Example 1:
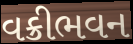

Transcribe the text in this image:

વક્રીભવન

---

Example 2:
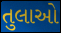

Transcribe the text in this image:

તુલાઓ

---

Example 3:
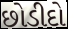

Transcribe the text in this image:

છોડીદો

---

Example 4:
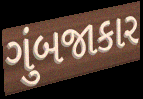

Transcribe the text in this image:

ગુંબજાકાર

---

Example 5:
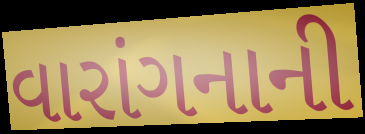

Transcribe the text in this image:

વારાંગનાની